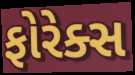
ફોરેક્સ